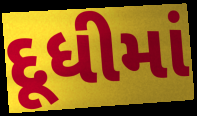
દૂધીમાં